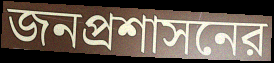
জনপ্রশাসনের